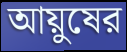
আয়ুষের